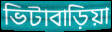
ভিটাবাড়িয়া